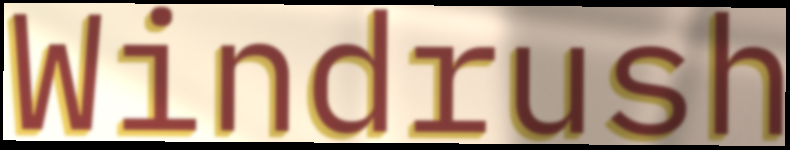
Windrush